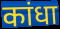
कांधा